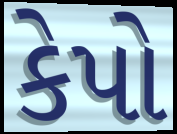
કેપો